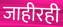
जाहीरही